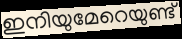
ഇനിയുമേറെയുണ്ട്